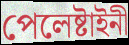
পেলেষ্টাইনী